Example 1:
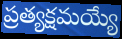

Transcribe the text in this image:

ప్రత్యక్షమయ్యే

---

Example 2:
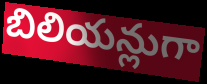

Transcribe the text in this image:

బిలియన్లుగా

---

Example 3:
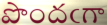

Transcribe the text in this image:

పొందఁగా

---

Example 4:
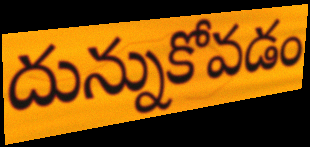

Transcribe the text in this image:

దున్నుకోవడం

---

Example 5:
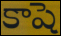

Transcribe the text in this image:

కాషె